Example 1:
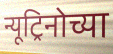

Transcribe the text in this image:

न्यूट्रिनोच्या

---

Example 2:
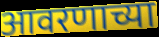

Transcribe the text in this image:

आवरणाच्या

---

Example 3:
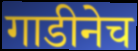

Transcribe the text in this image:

गाडीनेच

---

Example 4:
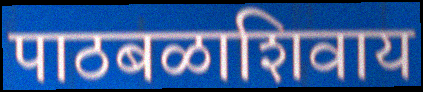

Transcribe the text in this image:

पाठबळाशिवाय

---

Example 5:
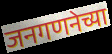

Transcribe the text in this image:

जनगणनेच्या